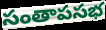
సంతాపసభ